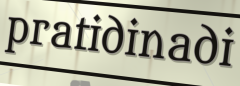
pratidinadi